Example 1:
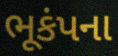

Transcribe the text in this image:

ભૂકંપના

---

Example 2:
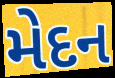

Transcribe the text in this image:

મેદન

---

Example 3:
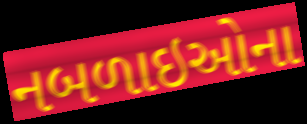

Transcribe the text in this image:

નબળાઇઓના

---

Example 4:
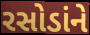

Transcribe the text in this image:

રસોડાંને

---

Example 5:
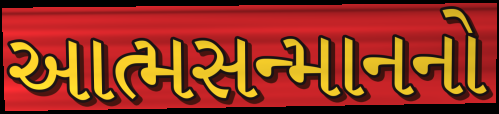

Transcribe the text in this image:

આત્મસન્માનનો